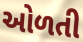
ઓળતી